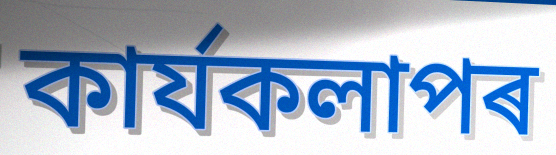
কাৰ্যকলাপৰ